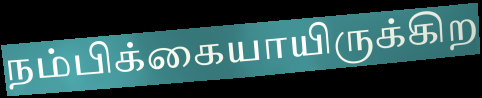
நம்பிக்கையாயிருக்கிற